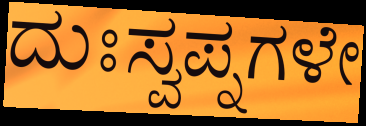
ದುಃಸ್ವಪ್ನಗಳೇ